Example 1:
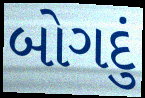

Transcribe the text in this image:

બોગદું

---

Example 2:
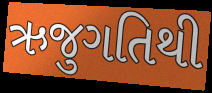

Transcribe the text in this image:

ઋજુગતિથી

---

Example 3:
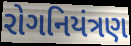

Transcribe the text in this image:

રોગનિયંત્રણ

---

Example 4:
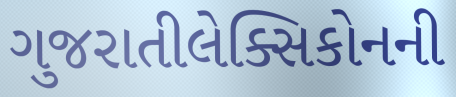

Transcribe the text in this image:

ગુજરાતીલેક્સિકોનની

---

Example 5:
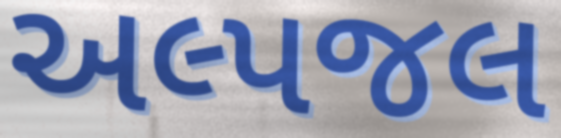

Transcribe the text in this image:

અલ્પજલ